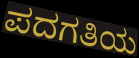
ಪದಗತಿಯ